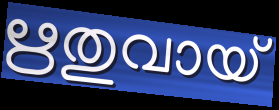
ഋതുവായ്